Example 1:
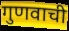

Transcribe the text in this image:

गुणवाची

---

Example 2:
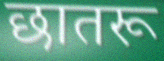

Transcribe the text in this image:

छातरू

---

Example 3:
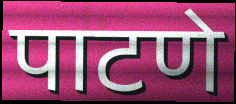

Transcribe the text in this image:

पाटणे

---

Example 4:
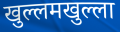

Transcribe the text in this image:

खुल्लमखुल्ला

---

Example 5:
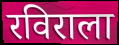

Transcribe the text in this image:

रविराला